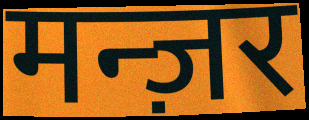
मन्ज़र